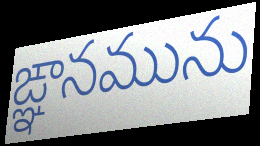
ఙ్ఞానమును